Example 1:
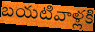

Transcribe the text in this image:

బయటివాళ్లకి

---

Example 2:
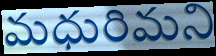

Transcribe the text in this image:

మధురిమని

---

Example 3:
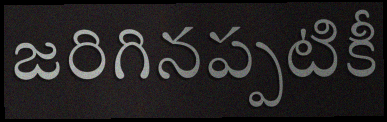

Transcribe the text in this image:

జరిగినప్పటికీ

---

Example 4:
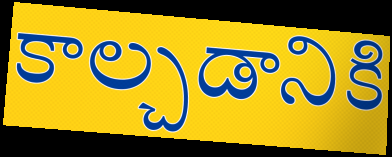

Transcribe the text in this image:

కాల్చడానికి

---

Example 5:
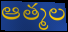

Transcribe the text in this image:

ఆత్మల